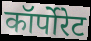
कॉर्पोरेट